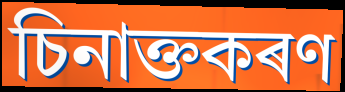
চিনাক্তকৰণ